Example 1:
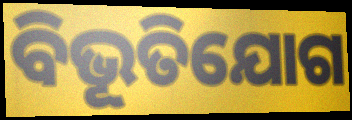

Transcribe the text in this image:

ବିଭୂତିଯୋଗ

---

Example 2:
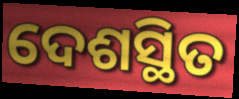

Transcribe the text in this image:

ଦେଶସ୍ଥିତ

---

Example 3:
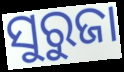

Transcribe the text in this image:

ସୁରୁଜା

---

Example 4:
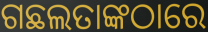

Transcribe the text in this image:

ଗଛଲତାଙ୍କଠାରେ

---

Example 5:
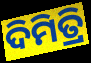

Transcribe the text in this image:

ଦିମିତ୍ରି